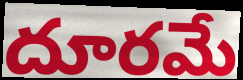
దూరమే